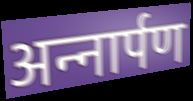
अन्नार्पण